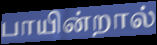
பாயின்றால்